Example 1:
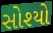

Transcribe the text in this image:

સોશ્યો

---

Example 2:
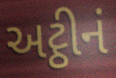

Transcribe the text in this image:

અટ્ઠીનં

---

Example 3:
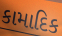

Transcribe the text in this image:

કામાદિક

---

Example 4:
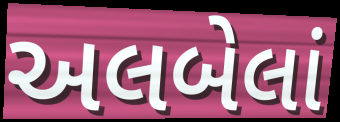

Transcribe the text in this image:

અલબેલાં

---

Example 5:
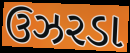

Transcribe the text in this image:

ઉઝરડા